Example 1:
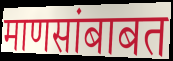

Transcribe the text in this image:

माणसांबाबत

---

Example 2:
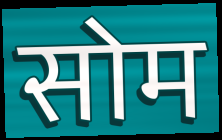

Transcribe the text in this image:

सोम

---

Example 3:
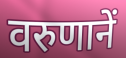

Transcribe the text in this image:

वरुणानें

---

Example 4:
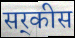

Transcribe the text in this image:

सर्कीस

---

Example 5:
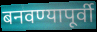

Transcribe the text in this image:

बनवण्यापूर्वी